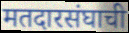
मतदारसंघाची